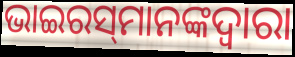
ଭାଇରସ୍‌ମାନଙ୍କଦ୍ୱାରା